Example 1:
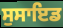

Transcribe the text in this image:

ਸੁਸਾਇਡ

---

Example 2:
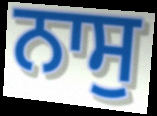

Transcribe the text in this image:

ਨਾਸੁ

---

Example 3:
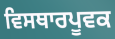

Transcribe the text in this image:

ਵਿਸਥਾਰਪੂਵਕ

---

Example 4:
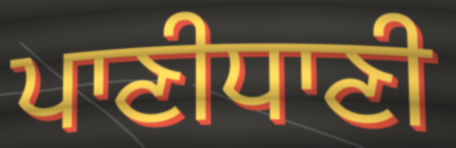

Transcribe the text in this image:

ਪਾਣੀਧਾਣੀ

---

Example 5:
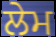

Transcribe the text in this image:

ਲੇਮ